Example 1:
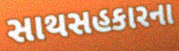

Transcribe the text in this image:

સાથસહકારના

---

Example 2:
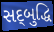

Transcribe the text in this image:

સદ્‌બુદ્ધિ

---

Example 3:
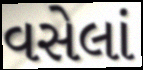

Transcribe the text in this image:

વસેલાં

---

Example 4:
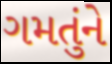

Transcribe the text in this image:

ગમતુંને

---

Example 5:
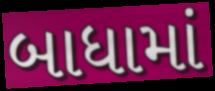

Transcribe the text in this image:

બાધામાં